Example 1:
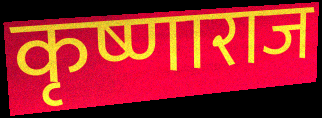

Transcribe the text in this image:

कृष्णाराज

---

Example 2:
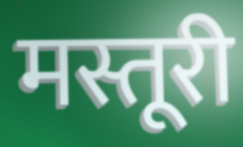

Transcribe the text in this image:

मस्तूरी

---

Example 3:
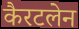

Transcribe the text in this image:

कैरटलेन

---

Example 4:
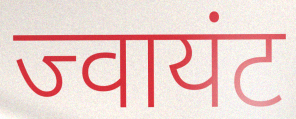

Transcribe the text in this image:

ज्वायंट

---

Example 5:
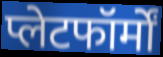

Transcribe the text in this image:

प्लेटफॉर्मों